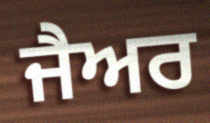
ਜੈਅਰ